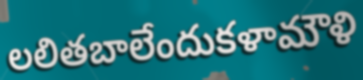
లలితబాలేందుకళామౌళి